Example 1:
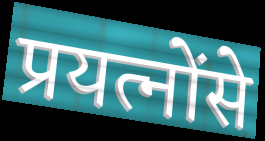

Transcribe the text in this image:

प्रयत्नोंसे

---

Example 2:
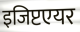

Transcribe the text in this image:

इजिप्टएयर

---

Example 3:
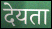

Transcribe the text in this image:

देयता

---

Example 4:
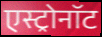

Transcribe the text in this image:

एस्ट्रोनॉट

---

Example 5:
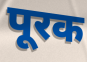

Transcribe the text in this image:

पूरक